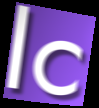
Ic